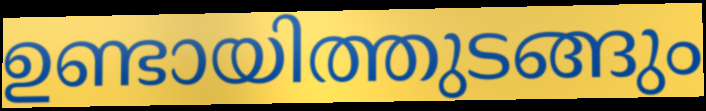
ഉണ്ടായിത്തുടങ്ങും